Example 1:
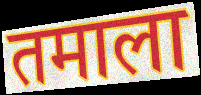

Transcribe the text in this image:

तमाला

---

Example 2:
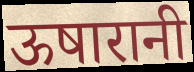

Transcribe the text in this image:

ऊषारानी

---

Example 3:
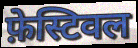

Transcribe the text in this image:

फ़ेस्टिवल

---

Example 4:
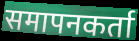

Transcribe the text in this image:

समापनकर्ता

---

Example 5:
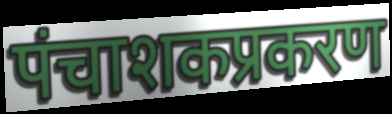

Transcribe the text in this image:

पंचाशकप्रकरण